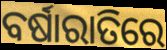
ବର୍ଷାରାତିରେ